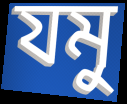
যমু